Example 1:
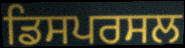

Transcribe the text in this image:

ਡਿਸਪਰਸਲ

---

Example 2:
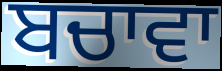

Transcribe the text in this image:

ਬਚਾਵਾ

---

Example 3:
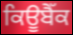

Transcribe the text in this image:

ਕਿਊਬੈੱਕ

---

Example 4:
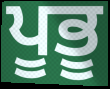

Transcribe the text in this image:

ਪੂਭੂ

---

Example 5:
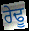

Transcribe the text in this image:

ਰੇਢੂ